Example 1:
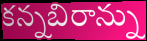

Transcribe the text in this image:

కన్నబిరాన్ను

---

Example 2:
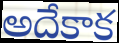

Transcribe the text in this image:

అదేకాక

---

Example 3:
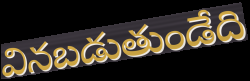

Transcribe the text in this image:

వినబడుతుండేది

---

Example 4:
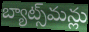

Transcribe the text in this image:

బ్యాట్స్‌మన్లు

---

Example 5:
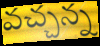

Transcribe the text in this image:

వచ్చన్న